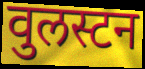
वुलस्टन